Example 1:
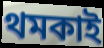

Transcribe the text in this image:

থমকাই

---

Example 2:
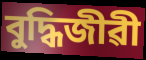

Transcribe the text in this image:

বুদ্ধিজীৱী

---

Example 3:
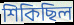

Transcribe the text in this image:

শিকিছিল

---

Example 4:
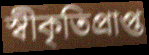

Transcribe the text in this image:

স্বীকৃতিপ্ৰাপ্ত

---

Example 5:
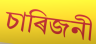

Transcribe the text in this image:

চাৰিজনী